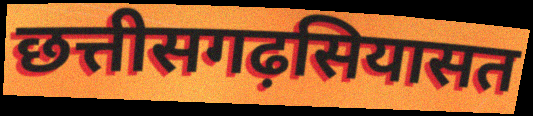
छत्तीसगढ़सियासत